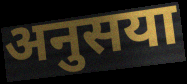
अनुसया